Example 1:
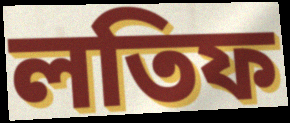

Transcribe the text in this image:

লতিফ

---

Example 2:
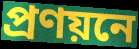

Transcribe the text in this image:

প্ৰণয়নে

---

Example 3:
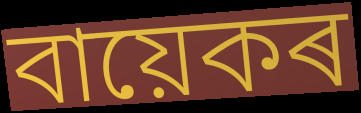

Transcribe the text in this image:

বায়েকৰ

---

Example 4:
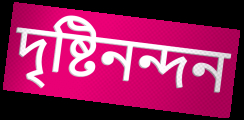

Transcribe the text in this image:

দৃষ্টিনন্দন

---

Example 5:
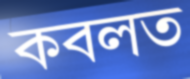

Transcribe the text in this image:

কবলত